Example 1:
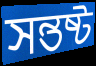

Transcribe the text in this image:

সন্তষ্ট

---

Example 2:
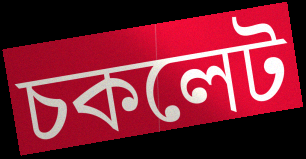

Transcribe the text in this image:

চকলেট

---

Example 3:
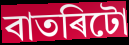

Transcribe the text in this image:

বাতৰিটো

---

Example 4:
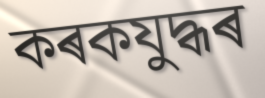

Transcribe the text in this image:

কৰকযুদ্ধৰ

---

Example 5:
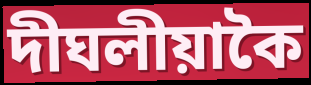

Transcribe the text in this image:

দীঘলীয়াকৈ